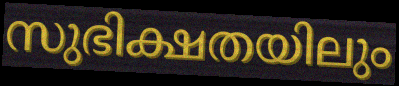
സുഭിക്ഷതയിലും